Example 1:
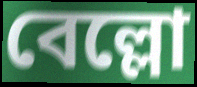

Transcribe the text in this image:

বেল্লো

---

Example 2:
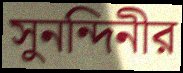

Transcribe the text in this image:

সুনন্দিনীর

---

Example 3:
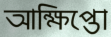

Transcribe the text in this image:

আক্ষিপ্তো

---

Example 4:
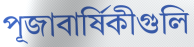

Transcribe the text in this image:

পূজাবার্ষিকীগুলি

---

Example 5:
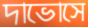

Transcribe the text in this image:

দাভোসে